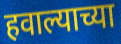
हवाल्याच्या